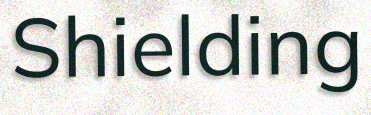
Shielding